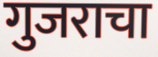
गुजराचा